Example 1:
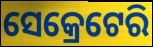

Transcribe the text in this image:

ସେକ୍ରେଟେରି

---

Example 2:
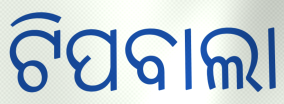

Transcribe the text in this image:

ଟିପବାଲା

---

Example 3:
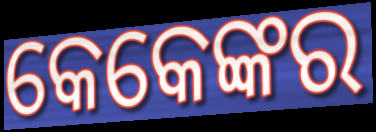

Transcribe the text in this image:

କେକେଙ୍କର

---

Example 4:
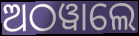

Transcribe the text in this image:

ଅଠୱାଲେ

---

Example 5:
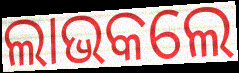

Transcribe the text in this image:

ଲାଭକଲେ